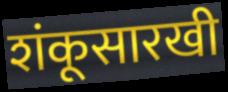
शंकूसारखी